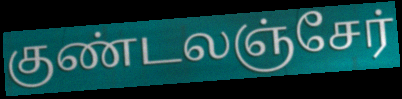
குண்டலஞ்சேர்